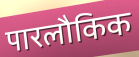
पारलौकिक